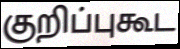
குறிப்புகூட